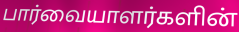
பார்வையாளர்களின்